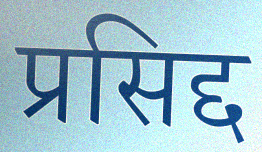
प्रसिद्द